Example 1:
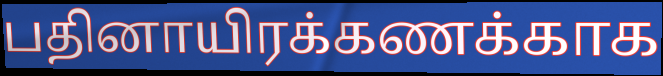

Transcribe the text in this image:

பதினாயிரக்கணக்காக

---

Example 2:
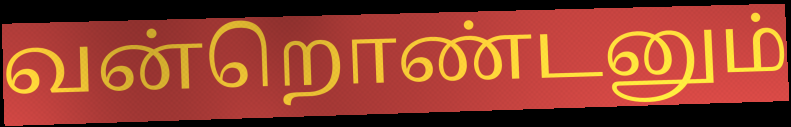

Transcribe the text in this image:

வன்றொண்டனும்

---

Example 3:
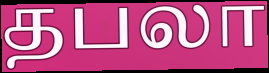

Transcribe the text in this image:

தபலா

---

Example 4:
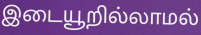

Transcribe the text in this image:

இடையூறில்லாமல்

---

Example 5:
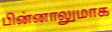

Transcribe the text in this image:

பின்னாலுமாக